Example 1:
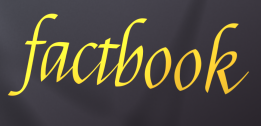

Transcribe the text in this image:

factbook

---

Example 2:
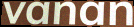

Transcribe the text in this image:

vanan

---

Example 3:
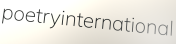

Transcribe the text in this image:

poetryinternational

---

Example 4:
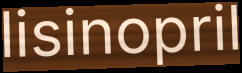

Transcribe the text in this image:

lisinopril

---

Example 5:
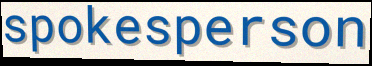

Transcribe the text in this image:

spokesperson